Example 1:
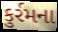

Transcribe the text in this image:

કુર્રમના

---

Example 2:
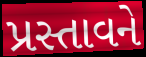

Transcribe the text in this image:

પ્રસ્તાવને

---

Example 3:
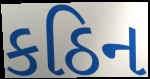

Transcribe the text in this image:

કઠિન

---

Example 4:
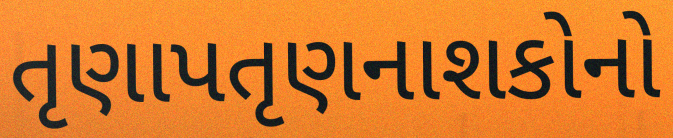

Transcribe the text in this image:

તૃણાપતૃણનાશકોનો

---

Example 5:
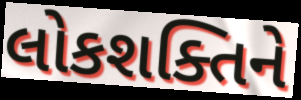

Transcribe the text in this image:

લોકશક્તિને